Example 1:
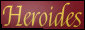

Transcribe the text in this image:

Heroides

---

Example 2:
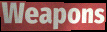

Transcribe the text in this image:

Weapons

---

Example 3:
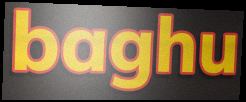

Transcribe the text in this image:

baghu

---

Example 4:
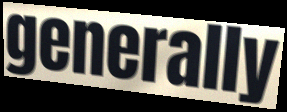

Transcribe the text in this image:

generally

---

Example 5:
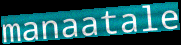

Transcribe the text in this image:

manaatale